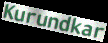
Kurundkar